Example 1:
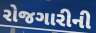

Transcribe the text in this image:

રોજગારીની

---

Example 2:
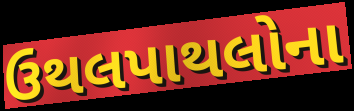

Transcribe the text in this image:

ઉથલપાથલોના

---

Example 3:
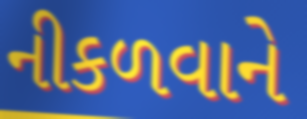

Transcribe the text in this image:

નીકળવાને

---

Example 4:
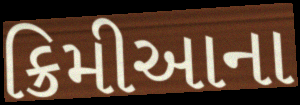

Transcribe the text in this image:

ક્રિમીઆના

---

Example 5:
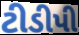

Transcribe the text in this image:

ટીડીપી